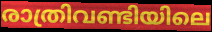
രാത്രിവണ്ടിയിലെ